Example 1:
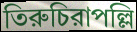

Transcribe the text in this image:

তিরুচিরাপল্লি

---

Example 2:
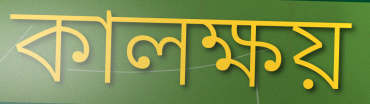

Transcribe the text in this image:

কালক্ষয়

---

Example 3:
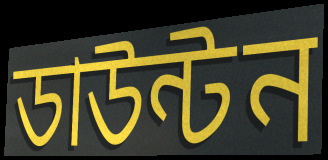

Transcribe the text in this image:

ডাউন্টন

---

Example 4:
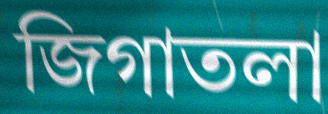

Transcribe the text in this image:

জিগাতলা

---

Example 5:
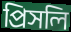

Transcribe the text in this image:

প্রিসলি